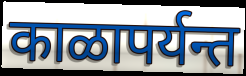
काळापर्यन्त